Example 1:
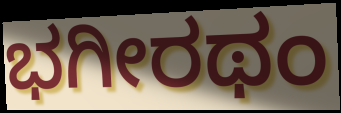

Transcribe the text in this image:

ಭಗೀರಥಂ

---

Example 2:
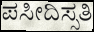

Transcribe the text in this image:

ಪಸೀದಿಸ್ಸತಿ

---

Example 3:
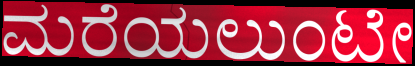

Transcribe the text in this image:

ಮರೆಯಲುಂಟೇ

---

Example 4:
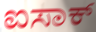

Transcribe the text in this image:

ಐಸಾಕ್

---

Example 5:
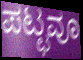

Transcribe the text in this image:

ಪಟ್ಟವೂ